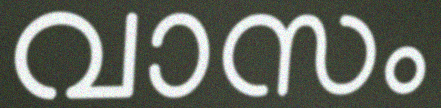
വാസം